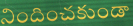
నిందించకుండా